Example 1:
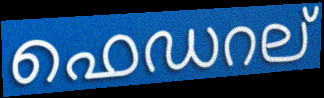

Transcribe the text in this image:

ഫെഡറല്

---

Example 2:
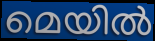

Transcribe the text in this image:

മെയിൽ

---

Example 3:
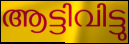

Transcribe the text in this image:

ആട്ടിവിട്ടു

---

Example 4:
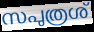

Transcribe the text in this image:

സപുത്രശ്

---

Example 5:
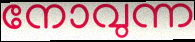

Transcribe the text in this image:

നോവുന്ന